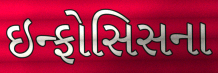
ઇન્ફોસિસના